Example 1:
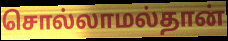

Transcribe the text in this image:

சொல்லாமல்தான்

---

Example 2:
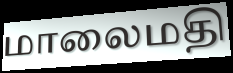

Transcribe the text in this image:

மாலைமதி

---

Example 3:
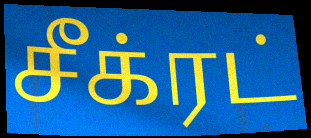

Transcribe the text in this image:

சீக்ரட்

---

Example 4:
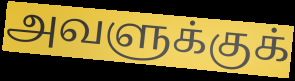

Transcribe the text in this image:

அவளுக்குக்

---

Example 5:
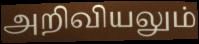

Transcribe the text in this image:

அறிவியலும்